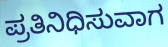
ಪ್ರತಿನಿಧಿಸುವಾಗ